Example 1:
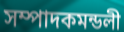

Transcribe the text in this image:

সম্পাদকমন্ডলী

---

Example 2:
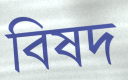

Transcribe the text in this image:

বিষদ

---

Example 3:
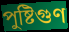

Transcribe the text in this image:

পুষ্টিগুণ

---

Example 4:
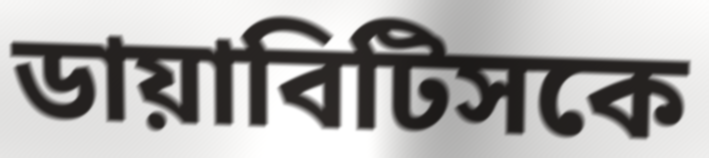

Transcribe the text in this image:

ডায়াবিটিসকে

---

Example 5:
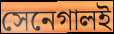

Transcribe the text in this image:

সেনেগালই